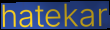
hatekar